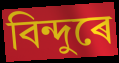
বিন্দুৰে